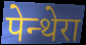
पेन्थेरा